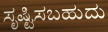
ಸೃಷ್ಟಿಸಬಹುದು